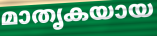
മാതൃകയായ